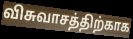
விசுவாசத்திற்காக